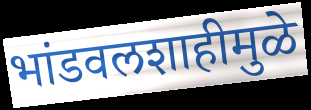
भांडवलशाहीमुळे